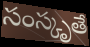
సంస్కృతే